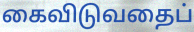
கைவிடுவதைப்